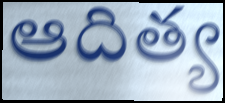
ఆదిత్య